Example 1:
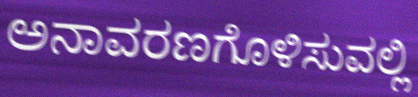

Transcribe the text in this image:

ಅನಾವರಣಗೊಳಿಸುವಲ್ಲಿ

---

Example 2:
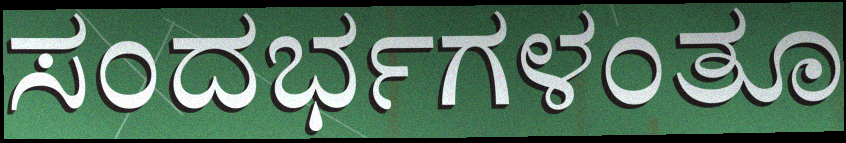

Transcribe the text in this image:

ಸಂದರ್ಭಗಳಂತೂ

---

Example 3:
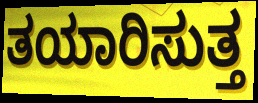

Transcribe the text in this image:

ತಯಾರಿಸುತ್ತ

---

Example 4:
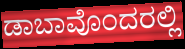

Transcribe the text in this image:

ಡಾಬಾವೊಂದರಲ್ಲಿ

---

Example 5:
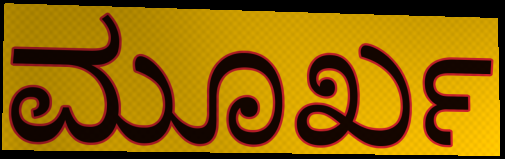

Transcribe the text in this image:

ಮೂರ್ಖ